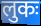
लुकः